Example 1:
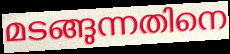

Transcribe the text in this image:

മടങ്ങുന്നതിനെ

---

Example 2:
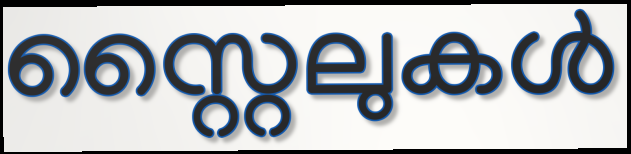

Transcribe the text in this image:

സ്റ്റൈലുകൾ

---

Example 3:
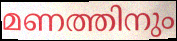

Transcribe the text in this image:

മണത്തിനും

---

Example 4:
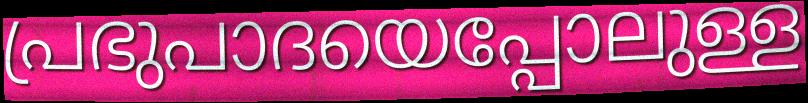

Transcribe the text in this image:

പ്രഭുപാദയെപ്പോലുള്ള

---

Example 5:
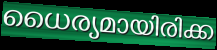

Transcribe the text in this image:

ധൈര്യമായിരിക്ക